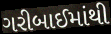
ગરીબાઈમાંથી